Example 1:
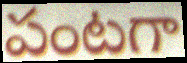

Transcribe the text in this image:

పంటగా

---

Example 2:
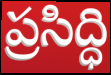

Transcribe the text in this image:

ప్రసిద్ధి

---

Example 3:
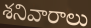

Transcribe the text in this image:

శనివారాలు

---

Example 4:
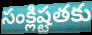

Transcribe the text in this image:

సంక్లిష్టతకు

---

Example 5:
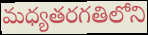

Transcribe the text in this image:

మధ్యతరగతిలోని